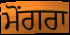
ਮੋਂਗਰਾ